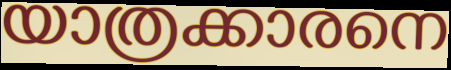
യാത്രക്കാരനെ